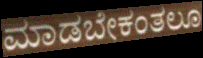
ಮಾಡಬೇಕಂತಲೂ